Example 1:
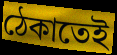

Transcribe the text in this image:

ঠেকাতেই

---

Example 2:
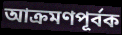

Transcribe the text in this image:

আক্রমণপূর্বক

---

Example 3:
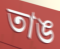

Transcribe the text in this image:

তাঙ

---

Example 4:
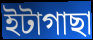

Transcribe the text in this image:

ইটাগাছা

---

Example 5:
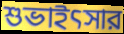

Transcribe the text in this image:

শুভাইৎসার